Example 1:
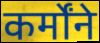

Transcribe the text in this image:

कर्मोंने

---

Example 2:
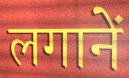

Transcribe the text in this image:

लगानें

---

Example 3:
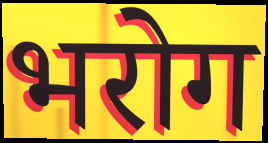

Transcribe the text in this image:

भरोग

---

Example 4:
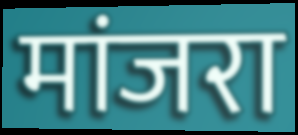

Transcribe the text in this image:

मांजरा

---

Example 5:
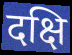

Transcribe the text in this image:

दक्षि